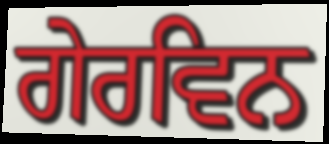
ਗੇਰਵਿਨ